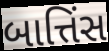
બાત્તિંસ